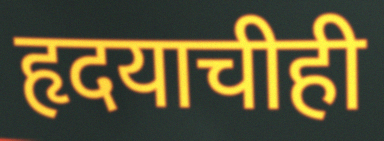
हृदयाचीही